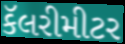
કૅલરીમીટર